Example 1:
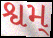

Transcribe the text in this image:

શ્વમ્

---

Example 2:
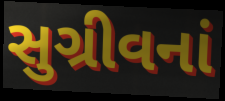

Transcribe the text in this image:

સુગ્રીવનાં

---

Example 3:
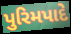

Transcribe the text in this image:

પુરિમપાદે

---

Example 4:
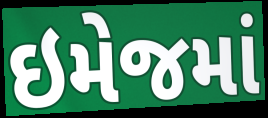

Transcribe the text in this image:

ઇમેજમાં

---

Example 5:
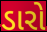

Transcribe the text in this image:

ડારો